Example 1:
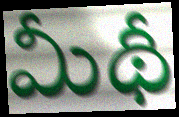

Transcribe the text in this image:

మీథీ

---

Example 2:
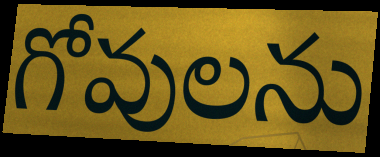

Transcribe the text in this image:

గోవులను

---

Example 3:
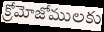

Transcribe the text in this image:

క్రోమోజోములకు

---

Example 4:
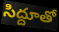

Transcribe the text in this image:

సిద్దూతో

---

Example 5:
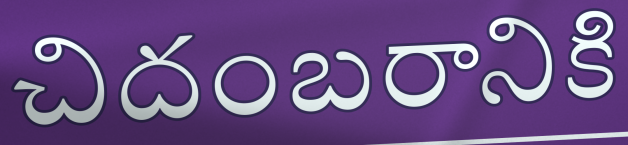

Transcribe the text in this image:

చిదంబరానికి